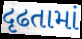
દૃઢતામાં